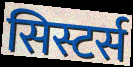
सिस्टर्स